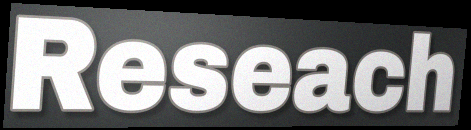
Reseach